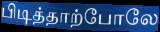
பிடித்தாற்போலே